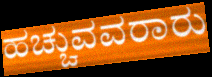
ಹಚ್ಚುವವರಾರು